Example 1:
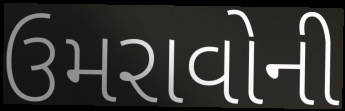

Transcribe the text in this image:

ઉમરાવોની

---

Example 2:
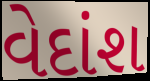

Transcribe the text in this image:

વેદાંશ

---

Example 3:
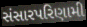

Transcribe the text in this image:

સંસારપરિણામી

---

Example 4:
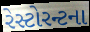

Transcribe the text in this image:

રેસ્ટોરન્ટના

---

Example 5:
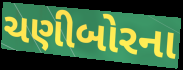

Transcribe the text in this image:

ચણીબોરના